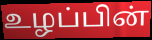
உழப்பின்